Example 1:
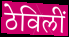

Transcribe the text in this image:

ठेविलीं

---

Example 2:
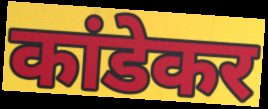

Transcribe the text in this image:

कांडेकर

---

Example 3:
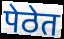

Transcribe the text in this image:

पेठेत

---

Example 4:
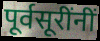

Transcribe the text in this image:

पूर्वसूरींनीं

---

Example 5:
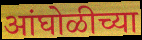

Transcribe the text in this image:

आंघोळीच्या